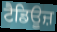
ਟੈਡਿਊਜ਼